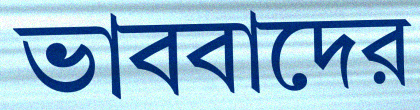
ভাববাদের